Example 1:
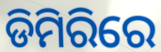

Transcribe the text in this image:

ଡିମିରିରେ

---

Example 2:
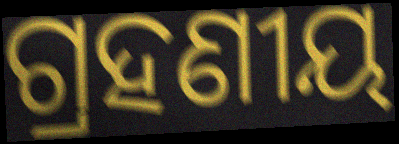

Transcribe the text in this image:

ଗ୍ରହଣୀୟ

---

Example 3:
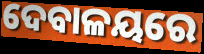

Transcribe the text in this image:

ଦେବାଳୟରେ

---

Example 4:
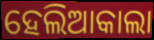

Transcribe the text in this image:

ହେଲିଆକାଲା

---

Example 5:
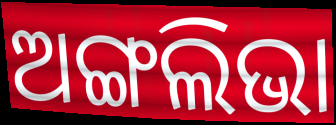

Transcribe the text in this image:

ଅଙ୍ଗଲିଭା